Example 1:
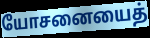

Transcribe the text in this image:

யோசனையைத்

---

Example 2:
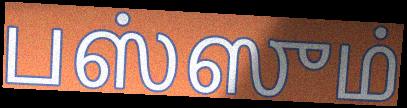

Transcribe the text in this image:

பஸ்ஸும்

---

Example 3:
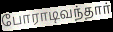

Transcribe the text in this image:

போராடிவந்தார்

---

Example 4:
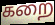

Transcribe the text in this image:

கறை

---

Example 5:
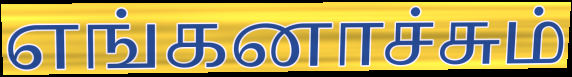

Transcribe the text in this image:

எங்கனாச்சும்